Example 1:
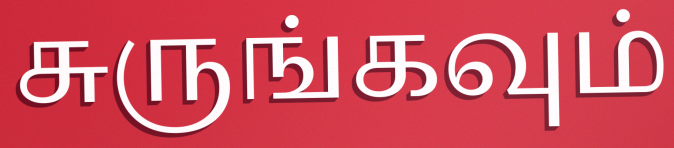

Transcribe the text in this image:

சுருங்கவும்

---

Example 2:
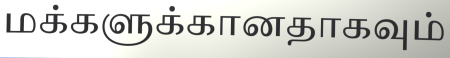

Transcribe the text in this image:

மக்களுக்கானதாகவும்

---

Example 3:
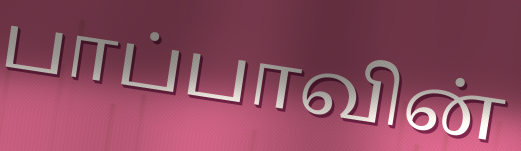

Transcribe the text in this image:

பாப்பாவின்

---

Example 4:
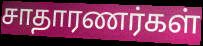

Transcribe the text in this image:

சாதாரணர்கள்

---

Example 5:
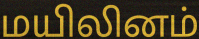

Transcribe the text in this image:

மயிலினம்